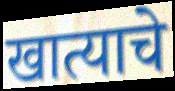
खात्याचे